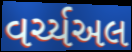
વર્ચ્યઅલ